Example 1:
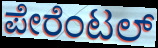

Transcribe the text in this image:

ಪೇರೆಂಟಲ್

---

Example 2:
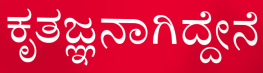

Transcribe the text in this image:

ಕೃತಜ್ಞನಾಗಿದ್ದೇನೆ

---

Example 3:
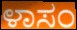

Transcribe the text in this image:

ಳಾಸಂ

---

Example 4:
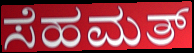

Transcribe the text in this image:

ಸೆಹಮತ್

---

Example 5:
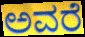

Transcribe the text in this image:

ಅವರೆ